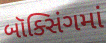
બૉક્સિંગમાં